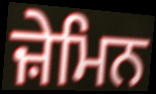
ਜ਼ੇਮਿਨ